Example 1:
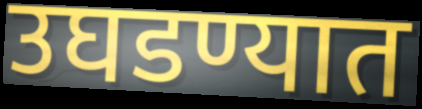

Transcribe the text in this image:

उघडण्यात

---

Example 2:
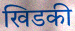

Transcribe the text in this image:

खिडकी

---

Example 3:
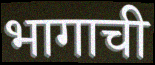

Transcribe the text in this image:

भागाची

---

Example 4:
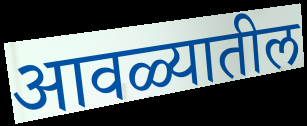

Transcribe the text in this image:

आवळ्यातील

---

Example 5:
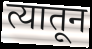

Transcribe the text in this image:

त्यातून